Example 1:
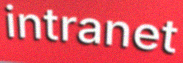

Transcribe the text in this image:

intranet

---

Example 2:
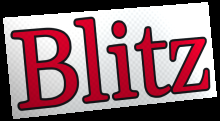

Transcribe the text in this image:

Blitz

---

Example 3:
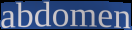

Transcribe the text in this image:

abdomen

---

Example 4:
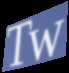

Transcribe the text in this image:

Tw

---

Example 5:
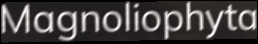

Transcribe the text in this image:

Magnoliophyta